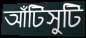
আঁটিসুটি